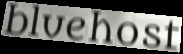
bluehost